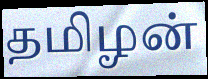
தமிழன்